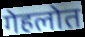
गेहलोत